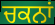
ਚਕਨਾਂ